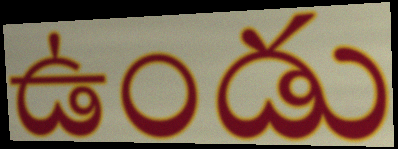
ఉండు